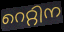
റെറ്റിന